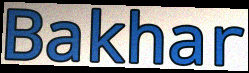
Bakhar